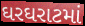
ઘરઘરાટમાં